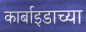
कार्बाइडाच्या